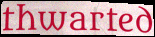
thwarted